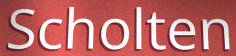
Scholten